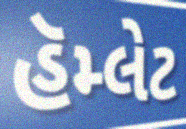
હૅમ્લેટ